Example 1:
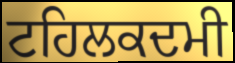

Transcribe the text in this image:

ਟਹਿਲਕਦਮੀ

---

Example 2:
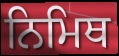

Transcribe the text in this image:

ਨਿਮਿਥ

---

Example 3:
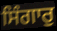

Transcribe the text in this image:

ਸਿੰਗਾਰੁ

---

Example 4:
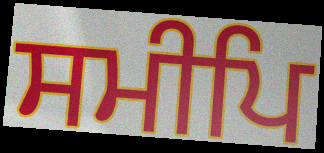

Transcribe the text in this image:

ਸਮੀਪਿ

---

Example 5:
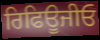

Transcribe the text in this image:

ਰਿਫਿਊਜੀਓ